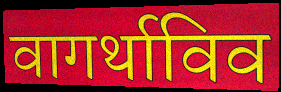
वागर्थाविव